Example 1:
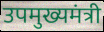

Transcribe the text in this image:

उपमुख्यमंत्री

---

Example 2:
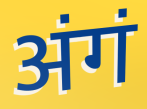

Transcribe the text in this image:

अंगं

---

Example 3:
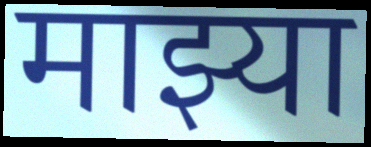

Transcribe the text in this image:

माझ्या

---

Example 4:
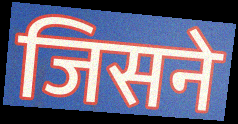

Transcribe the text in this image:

जिसने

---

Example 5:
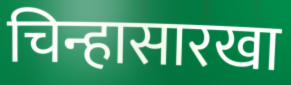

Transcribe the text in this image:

चिन्हासारखा